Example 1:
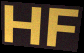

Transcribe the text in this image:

HF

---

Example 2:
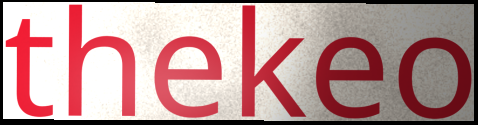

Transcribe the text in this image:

thekeo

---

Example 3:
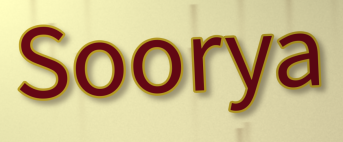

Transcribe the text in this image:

Soorya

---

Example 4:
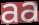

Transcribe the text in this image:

aa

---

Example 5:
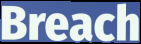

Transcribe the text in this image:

Breach